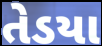
તેડયા